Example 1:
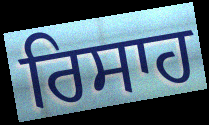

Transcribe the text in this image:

ਰਿਸਾਹ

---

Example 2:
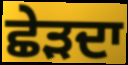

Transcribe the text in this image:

ਛੇੜਦਾ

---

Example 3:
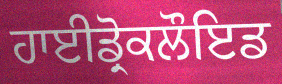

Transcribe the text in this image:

ਹਾਈਡ੍ਰੋਕਲੌਇਡ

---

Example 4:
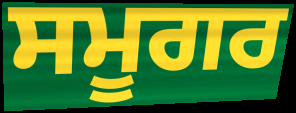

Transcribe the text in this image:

ਸਮੂਗਰ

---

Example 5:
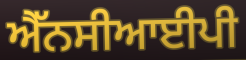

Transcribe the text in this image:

ਐੱਨਸੀਆਈਪੀ